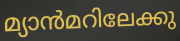
മ്യാൻമറിലേക്കു